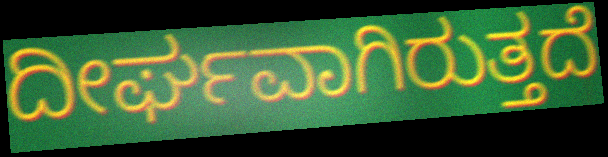
ದೀರ್ಘವಾಗಿರುತ್ತದೆ